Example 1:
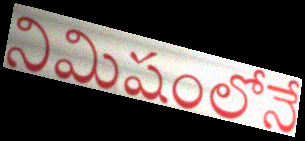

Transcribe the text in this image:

నిమిషంలోనే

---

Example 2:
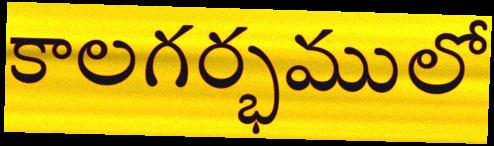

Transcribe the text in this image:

కాలగర్భములో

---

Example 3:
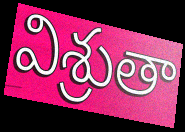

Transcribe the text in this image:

విశ్రుతా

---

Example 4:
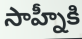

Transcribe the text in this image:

సాహ్నీకి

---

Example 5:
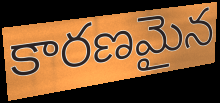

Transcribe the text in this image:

కారణమైన